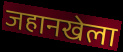
जहानखेला